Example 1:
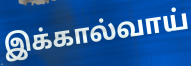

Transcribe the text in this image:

இக்கால்வாய்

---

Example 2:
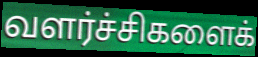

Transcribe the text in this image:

வளர்ச்சிகளைக்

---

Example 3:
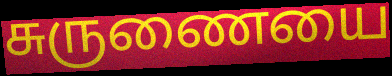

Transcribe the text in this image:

சுருணையை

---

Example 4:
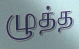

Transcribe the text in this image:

ழுத்த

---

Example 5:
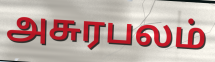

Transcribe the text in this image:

அசுரபலம்